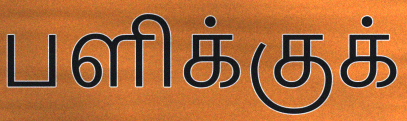
பளிக்குக்